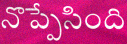
నొప్పేసింది